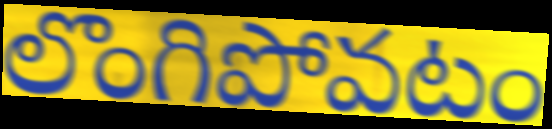
లొంగిపోవటం